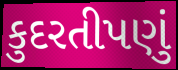
કુદરતીપણું